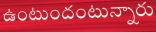
ఉంటుందంటున్నారు